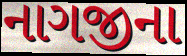
નાગજીના